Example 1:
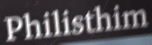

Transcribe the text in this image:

Philisthim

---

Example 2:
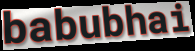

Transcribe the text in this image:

babubhai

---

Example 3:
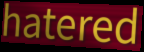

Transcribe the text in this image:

hatered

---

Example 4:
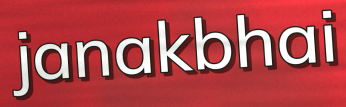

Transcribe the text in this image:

janakbhai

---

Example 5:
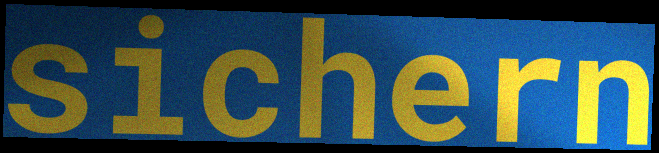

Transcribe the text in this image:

sichern